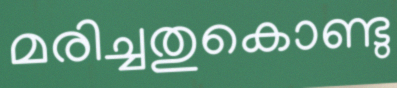
മരിച്ചതുകൊണ്ടു